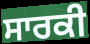
ਸਾਰਕੀ